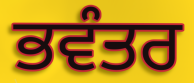
ਭਵੰਤਰ